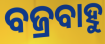
ବଜ୍ରବାହୁ